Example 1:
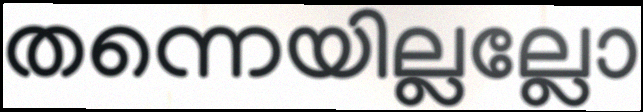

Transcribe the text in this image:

തന്നെയില്ലല്ലോ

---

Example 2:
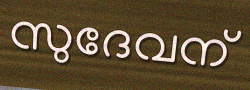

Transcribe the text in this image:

സുദേവന്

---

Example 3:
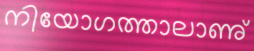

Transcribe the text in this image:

നിയോഗത്താലാണു്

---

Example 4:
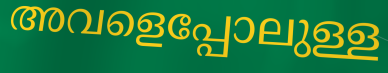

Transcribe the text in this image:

അവളെപ്പോലുള്ള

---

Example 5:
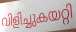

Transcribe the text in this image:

വിളിച്ചുകയറ്റി